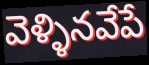
వెళ్ళినవేపే